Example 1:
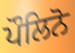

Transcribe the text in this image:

ਪੌਲਿਨੋ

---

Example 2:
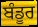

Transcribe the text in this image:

ਬੰਡੂਰ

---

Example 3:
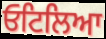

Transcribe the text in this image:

ਓਟਿਲਿਆ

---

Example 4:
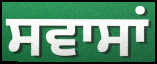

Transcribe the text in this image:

ਸਵਾਸਾਂ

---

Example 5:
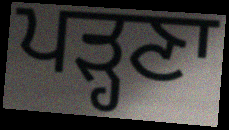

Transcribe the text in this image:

ਪੜ੍ਹਣਾ